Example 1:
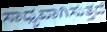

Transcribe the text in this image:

ಸಾಧ್ಯವಾಗಿಸುತ್ತದೆ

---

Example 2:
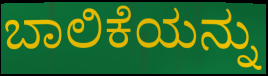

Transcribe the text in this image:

ಬಾಲಿಕೆಯನ್ನು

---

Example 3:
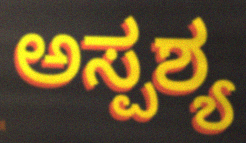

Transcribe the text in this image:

ಅಸ್ಪಶ್ಯ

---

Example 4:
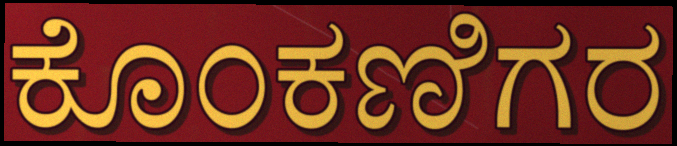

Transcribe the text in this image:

ಕೊಂಕಣಿಗರ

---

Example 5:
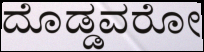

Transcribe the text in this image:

ದೊಡ್ಡವರೋ